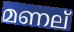
മണല്